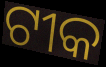
ଟୀକ